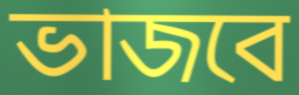
ভাজবে